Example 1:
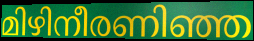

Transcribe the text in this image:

മിഴിനീരണിഞ്ഞ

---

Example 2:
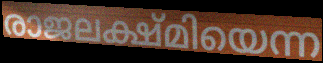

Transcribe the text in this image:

രാജലക്ഷ്മിയെന്ന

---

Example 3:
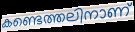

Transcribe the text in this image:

കണ്ടെത്തലിനാണ്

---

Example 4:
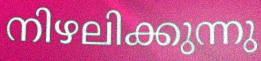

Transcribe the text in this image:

നിഴലിക്കുന്നു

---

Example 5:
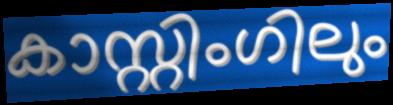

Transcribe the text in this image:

കാസ്റ്റിംഗിലും